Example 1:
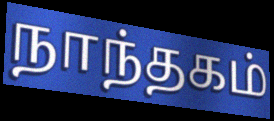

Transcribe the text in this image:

நாந்தகம்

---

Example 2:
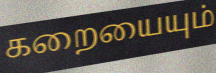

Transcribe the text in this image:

கறையையும்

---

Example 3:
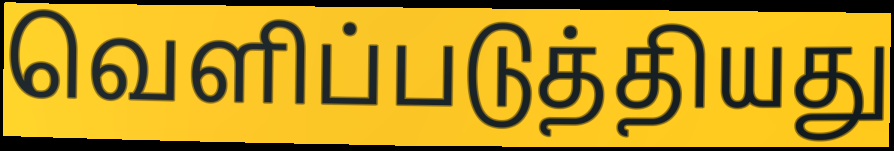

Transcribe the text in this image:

வெளிப்படுத்தியது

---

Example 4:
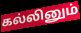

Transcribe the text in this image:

கல்லினும்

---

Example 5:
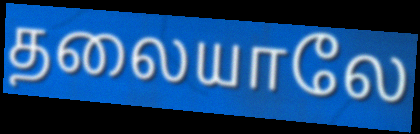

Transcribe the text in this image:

தலையாலே